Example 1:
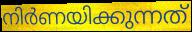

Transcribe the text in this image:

നിർണയിക്കുന്നത്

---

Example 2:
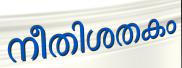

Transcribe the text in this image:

നീതിശതകം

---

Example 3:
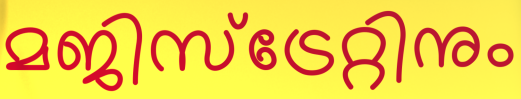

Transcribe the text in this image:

മജിസ്ട്രേറ്റിനും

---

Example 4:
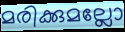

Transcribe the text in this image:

മരിക്കുമല്ലോ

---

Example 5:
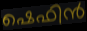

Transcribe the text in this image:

ഷെഫിൻ